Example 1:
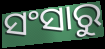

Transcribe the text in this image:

ସଂସାରୁ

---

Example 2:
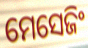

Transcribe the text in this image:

ମେସେଜିଂ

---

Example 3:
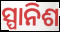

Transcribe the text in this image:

ସ୍ପାନିଶ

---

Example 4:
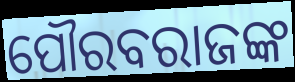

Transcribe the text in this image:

ପୌରବରାଜଙ୍କ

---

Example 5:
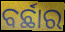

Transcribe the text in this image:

ବର୍ଛାର